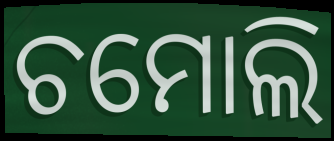
ଚମୋଲି